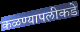
कळण्यापलीकडे